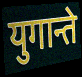
युगान्ते